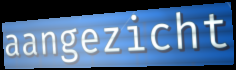
aangezicht